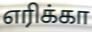
எரிக்கா